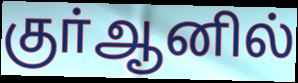
குர்ஆனில்